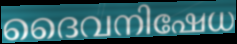
ദൈവനിഷേധ